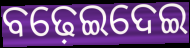
ବଢ଼େଇଦେଇ